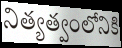
నిత్యత్వంలోనికి